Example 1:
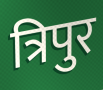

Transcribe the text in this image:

त्रिपुर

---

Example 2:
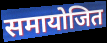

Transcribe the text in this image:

समायोजित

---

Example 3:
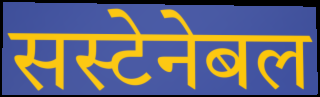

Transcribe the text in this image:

सस्टेनेबल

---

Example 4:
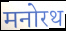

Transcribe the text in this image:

मनोरथ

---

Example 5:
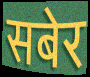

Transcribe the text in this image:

सबेर